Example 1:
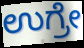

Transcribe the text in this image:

ಉಗ್ರೇ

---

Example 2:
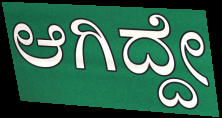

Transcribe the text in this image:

ಆಗಿದ್ದೇ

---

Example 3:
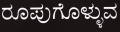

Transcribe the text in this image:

ರೂಪುಗೊಳ್ಳುವ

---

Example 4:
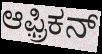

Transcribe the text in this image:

ಆಫ಼್ರಿಕನ್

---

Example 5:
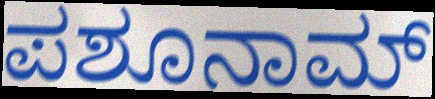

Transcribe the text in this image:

ಪಶೂನಾಮ್